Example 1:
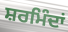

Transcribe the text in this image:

ਸ਼ਰਮਿੰਦਾਂ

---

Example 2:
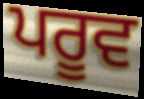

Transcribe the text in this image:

ਪਰੂਵ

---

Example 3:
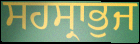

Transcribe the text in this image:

ਸਹਸ੍ਰਾਭੁਜ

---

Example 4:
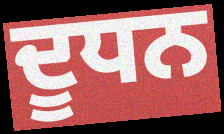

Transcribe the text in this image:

ਦੂਧਨ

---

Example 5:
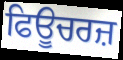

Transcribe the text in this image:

ਫਿਊਚਰਜ਼